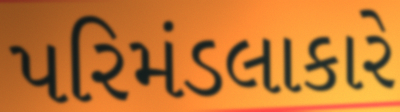
પરિમંડલાકારે